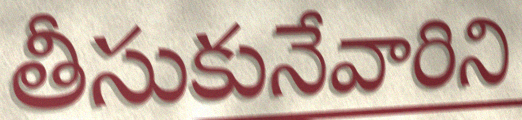
తీసుకునేవారిని